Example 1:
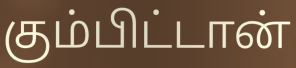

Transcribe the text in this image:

கும்பிட்டான்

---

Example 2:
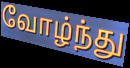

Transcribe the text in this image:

வோழ்ந்து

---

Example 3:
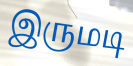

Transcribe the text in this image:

இருமடி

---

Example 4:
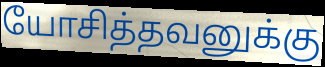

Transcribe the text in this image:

யோசித்தவனுக்கு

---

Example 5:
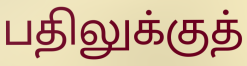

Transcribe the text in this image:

பதிலுக்குத்